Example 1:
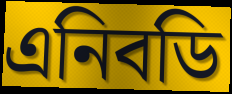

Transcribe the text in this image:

এনিবডি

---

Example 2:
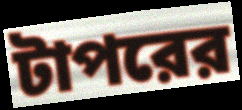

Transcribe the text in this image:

টাপরের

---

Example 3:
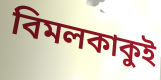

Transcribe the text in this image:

বিমলকাকুই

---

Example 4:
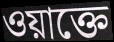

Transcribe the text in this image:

ওয়াক্তে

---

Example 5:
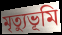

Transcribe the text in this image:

মৃত্যুভূমি